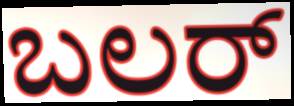
ಬಲರ್